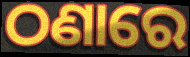
ଠଣାରେ